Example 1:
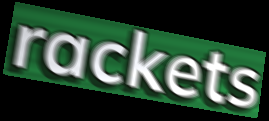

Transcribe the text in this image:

rackets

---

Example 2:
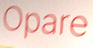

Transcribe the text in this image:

Opare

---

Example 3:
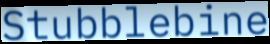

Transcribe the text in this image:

Stubblebine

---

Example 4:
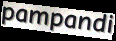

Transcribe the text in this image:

pampandi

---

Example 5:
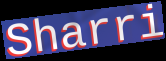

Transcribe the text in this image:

Sharri